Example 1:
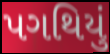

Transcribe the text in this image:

પગથિયું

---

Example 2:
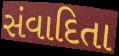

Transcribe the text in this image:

સંવાદિતા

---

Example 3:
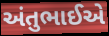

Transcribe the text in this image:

અંતુભાઈએ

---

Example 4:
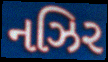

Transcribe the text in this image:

નઝિર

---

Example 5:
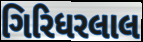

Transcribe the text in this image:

ગિરિધરલાલ